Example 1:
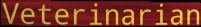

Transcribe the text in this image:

Veterinarian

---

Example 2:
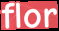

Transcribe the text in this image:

flor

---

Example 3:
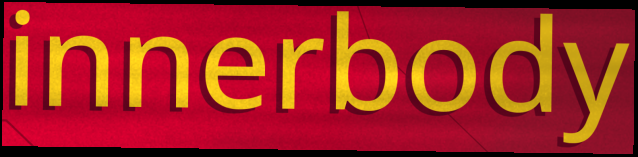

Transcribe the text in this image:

innerbody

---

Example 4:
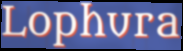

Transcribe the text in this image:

Lophura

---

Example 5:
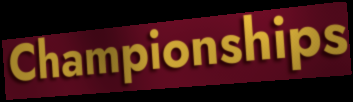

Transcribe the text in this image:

Championships